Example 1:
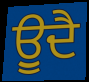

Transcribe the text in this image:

ਊੁਦੈ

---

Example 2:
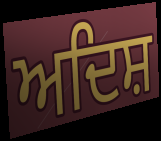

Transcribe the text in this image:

ਅਦਿਸ਼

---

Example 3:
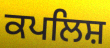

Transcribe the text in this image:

ਕਪਲਿਸ਼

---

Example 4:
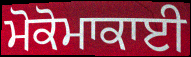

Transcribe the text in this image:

ਮੋਕੋਮਾਕਾਈ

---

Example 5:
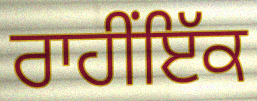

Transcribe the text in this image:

ਰਾਹੀਂਇੱਕ